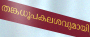
തങ്കധൂപകലശവുമായി